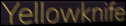
Yellowknife